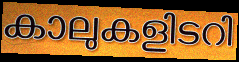
കാലുകളിടറി